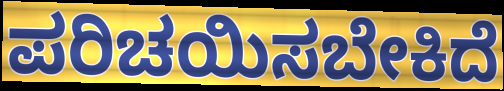
ಪರಿಚಯಿಸಬೇಕಿದೆ